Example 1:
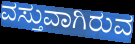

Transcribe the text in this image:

ವಸ್ತುವಾಗಿರುವ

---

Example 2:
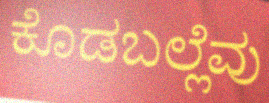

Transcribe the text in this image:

ಕೊಡಬಲ್ಲೆವು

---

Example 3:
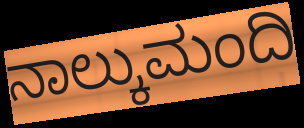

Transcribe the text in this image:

ನಾಲ್ಕುಮಂದಿ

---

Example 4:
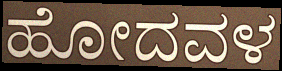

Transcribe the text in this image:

ಹೋದವಳ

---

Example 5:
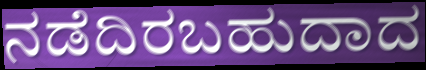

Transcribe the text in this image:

ನಡೆದಿರಬಹುದಾದ